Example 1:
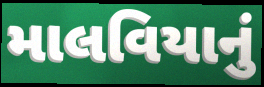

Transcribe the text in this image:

માલવિયાનું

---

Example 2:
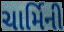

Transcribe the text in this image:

ચાર્મિની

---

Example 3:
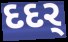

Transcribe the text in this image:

દદર્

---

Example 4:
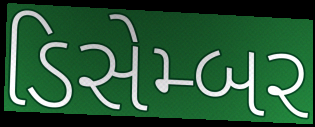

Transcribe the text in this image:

ડિસેમ્બર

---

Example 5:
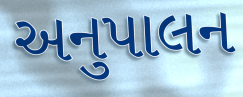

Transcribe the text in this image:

અનુપાલન